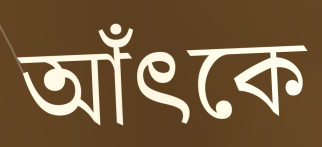
আঁৎকে